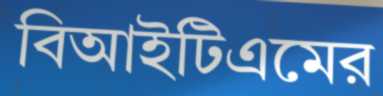
বিআইটিএমের